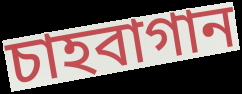
চাহবাগান